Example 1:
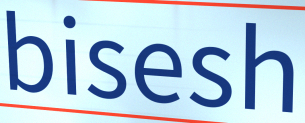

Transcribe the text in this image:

bisesh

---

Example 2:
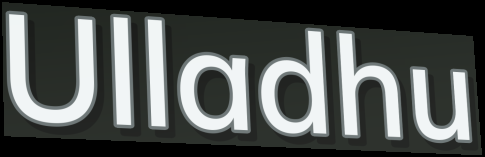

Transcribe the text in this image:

Ulladhu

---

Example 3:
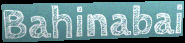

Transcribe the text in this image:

Bahinabai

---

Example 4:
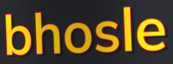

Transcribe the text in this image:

bhosle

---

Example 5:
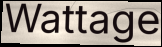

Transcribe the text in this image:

Wattage